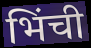
भिंची